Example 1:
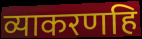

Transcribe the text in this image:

व्याकरणहि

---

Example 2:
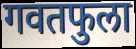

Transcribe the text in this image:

गवतफुला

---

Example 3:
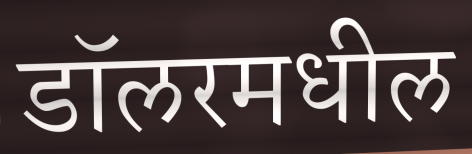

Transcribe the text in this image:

डॉलरमधील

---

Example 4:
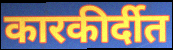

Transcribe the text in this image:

कारकीर्दीत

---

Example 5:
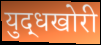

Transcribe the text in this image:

युद्धखोरी